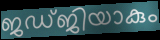
ജഡ്ജിയാകും